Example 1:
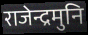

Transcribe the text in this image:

राजेन्द्रमुनि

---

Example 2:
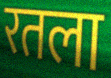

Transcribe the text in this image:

रतला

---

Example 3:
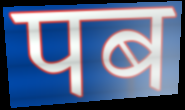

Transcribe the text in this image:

पब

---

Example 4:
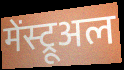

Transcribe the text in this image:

मेंस्ट्रूअल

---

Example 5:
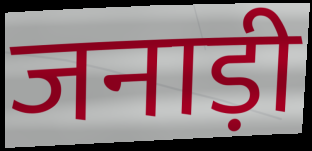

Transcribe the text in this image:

जनाड़ी